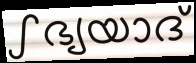
ഽഭ്യയാദ്